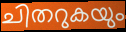
ചിതറുകയും